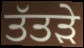
ਤੱਤੜੇ